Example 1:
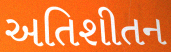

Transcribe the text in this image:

અતિશીતન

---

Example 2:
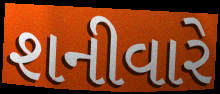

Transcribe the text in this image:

શનીવારે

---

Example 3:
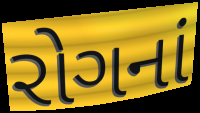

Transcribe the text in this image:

રોગનાં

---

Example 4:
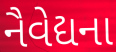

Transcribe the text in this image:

નૈવેદ્યના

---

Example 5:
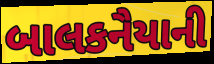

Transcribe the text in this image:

બાલકનૈયાની